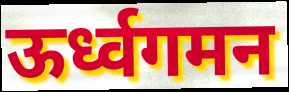
ऊर्ध्वगमन